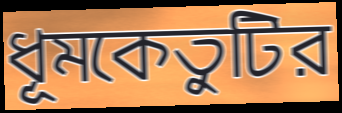
ধূমকেতুটির